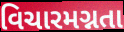
વિચારમગ્નતા